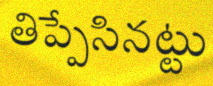
తిప్పేసినట్టు